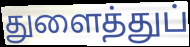
துளைத்துப்